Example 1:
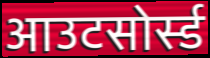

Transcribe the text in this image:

आउटसोर्स्ड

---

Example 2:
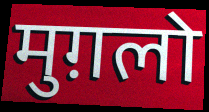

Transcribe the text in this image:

मुग़लो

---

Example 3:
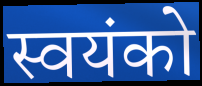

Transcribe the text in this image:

स्वयंको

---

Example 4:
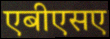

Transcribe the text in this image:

एबीएसए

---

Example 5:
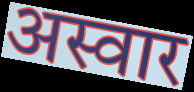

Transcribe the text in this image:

अस्वार